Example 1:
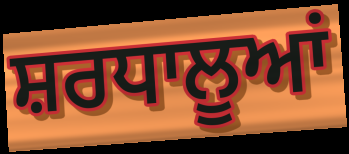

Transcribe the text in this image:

ਸ਼ਰਧਾਲੂਆਂ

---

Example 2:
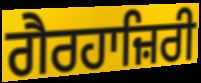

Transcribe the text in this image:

ਗੈਰਹਾਜ਼ਿਰੀ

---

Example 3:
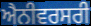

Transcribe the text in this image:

ਐਨੀਵਰਸਰੀ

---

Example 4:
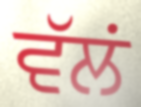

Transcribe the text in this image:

ਵੱਲਂ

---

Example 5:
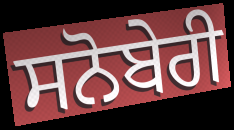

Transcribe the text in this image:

ਸਨੋਬੇਰੀ